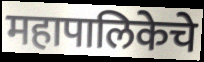
महापालिकेचे